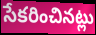
సేకరించినట్లు